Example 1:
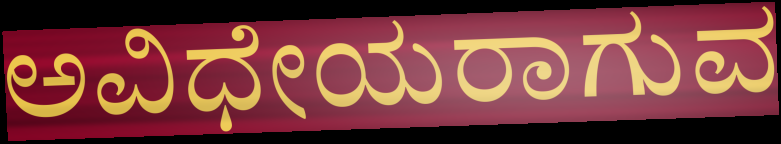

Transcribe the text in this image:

ಅವಿಧೇಯರಾಗುವ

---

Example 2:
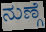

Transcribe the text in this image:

ನುಣ್ಗೆ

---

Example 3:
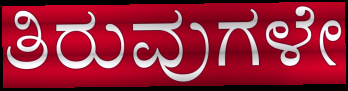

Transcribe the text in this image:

ತಿರುವುಗಳೇ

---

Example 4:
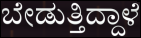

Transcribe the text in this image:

ಬೇಡುತ್ತಿದ್ದಾಳೆ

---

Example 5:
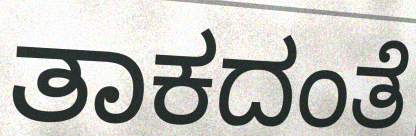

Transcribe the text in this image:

ತಾಕದಂತೆ